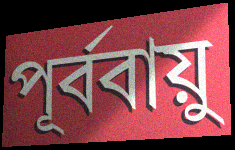
পূর্ববায়ু